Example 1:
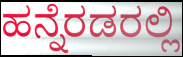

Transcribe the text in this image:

ಹನ್ನೆರಡರಲ್ಲಿ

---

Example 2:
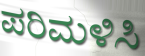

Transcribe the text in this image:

ಪರಿಮಳಿಸಿ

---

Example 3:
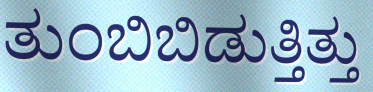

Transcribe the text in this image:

ತುಂಬಿಬಿಡುತ್ತಿತ್ತು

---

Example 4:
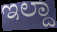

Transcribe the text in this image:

ಇಲ್ದಾ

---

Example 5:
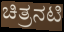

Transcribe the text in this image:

ಚಿತ್ರನಟಿ